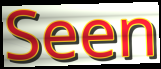
Seen